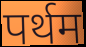
पर्थम